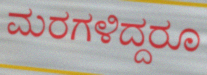
ಮರಗಳಿದ್ದರೂ